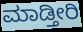
ಮಾಡ್ತೀರಿ